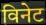
विनेट